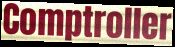
Comptroller